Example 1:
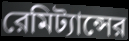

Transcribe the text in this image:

রেমিট্যান্সের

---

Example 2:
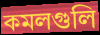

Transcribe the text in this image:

কমলগুলি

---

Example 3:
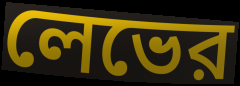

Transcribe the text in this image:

লেভের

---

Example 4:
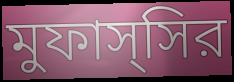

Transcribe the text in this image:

মুফাস্সির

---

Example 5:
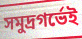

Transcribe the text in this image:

সমুদ্রগর্ভেই